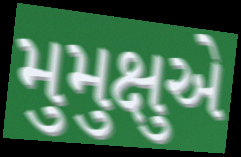
મુમુક્ષુએ